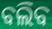
ବଲିବ